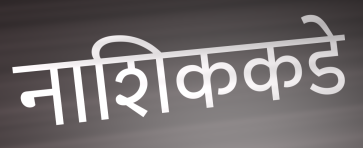
नाशिककडे